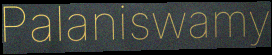
Palaniswamy